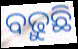
ବଢ଼ୁଛି